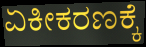
ಏಕೀಕರಣಕ್ಕೆ